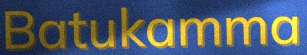
Batukamma